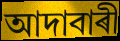
আদাবাৰী